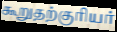
கூறுதற்குரியர்